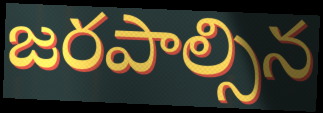
జరపాల్సిన